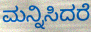
ಮನ್ನಿಸಿದರೆ